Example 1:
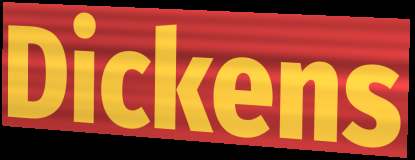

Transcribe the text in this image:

Dickens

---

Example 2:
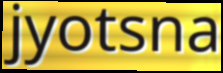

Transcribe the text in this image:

jyotsna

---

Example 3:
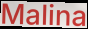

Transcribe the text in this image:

Malina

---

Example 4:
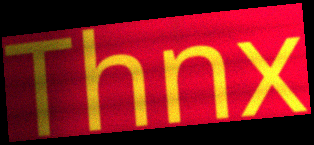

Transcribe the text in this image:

Thnx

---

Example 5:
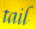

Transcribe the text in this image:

tail